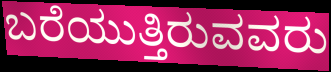
ಬರೆಯುತ್ತಿರುವವರು